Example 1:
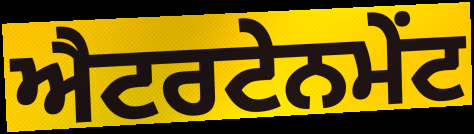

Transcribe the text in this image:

ਐਟਰਟੇਨਮੇਂਟ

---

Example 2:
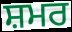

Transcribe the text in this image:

ਸ਼ਮਰ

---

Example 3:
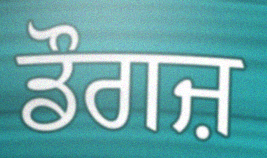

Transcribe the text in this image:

ਡੌਗਜ਼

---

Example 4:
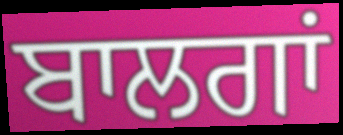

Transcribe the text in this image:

ਬਾਲਗਾਂ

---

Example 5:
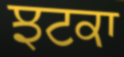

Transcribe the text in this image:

ਝਟਕਾ